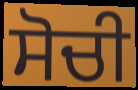
ਸੋਚੀ